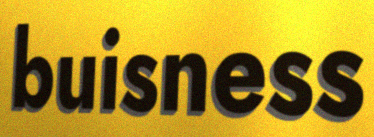
buisness